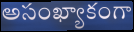
అసంఖ్యాకంగా